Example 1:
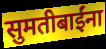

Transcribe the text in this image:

सुमतीबाईंना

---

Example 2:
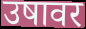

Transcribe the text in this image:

उषावर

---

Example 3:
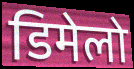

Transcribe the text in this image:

डिमेलो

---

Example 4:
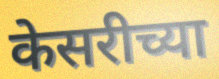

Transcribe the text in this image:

केसरीच्या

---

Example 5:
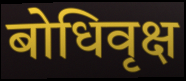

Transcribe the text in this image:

बोधिवृक्ष